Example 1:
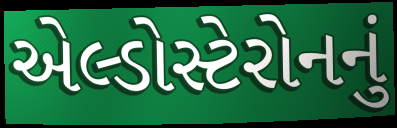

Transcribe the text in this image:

એલ્ડોસ્ટેરોનનું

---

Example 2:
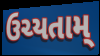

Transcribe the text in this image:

ઉચ્યતામ્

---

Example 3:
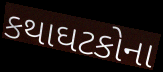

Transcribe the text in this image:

કથાઘટકોના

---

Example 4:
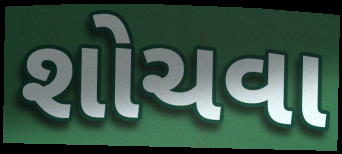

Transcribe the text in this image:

શોચવા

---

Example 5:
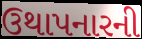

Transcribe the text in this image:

ઉથાપનારની